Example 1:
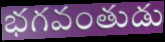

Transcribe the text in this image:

భగవంతుడు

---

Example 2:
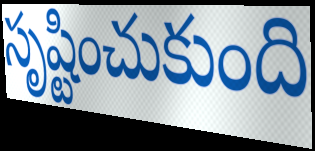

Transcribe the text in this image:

సృష్టించుకుంది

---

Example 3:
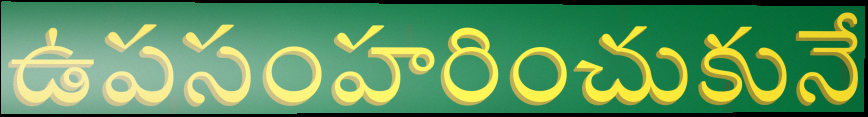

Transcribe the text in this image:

ఉపసంహరించుకునే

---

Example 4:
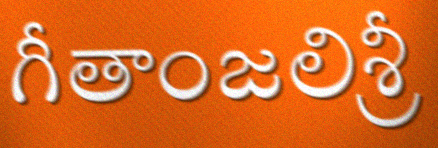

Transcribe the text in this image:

గీతాంజలిశ్రీ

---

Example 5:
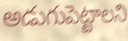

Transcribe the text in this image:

అడుగుపెట్టాలని